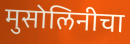
मुसोलिनीचा